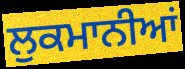
ਲੁਕਮਾਨੀਆਂ